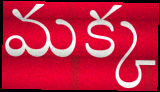
మక్క